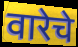
वारेचे